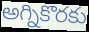
అగ్నికొరకు